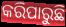
କରିପାରୁଛି